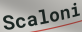
Scaloni